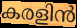
കരളിൻ